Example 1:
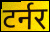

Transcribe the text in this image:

टर्नर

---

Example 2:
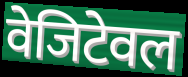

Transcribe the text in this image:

वेजिटेवल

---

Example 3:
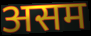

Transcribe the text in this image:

असम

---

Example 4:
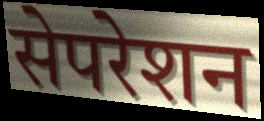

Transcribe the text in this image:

सेपरेशन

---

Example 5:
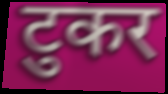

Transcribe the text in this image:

टुकर